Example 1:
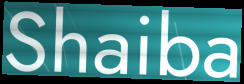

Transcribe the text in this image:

Shaiba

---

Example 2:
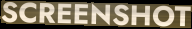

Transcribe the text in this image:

SCREENSHOT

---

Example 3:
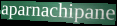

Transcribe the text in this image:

aparnachipane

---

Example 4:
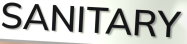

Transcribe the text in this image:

SANITARY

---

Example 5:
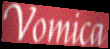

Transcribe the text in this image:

Vomica